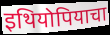
इथियोपियाचा